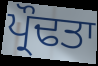
ਪ੍ਰੌਢਤਾ